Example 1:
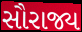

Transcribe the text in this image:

સૌરાજ્ય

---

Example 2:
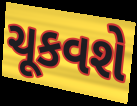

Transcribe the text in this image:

ચૂકવશે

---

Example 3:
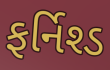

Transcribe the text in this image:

ફર્નિશ્ડ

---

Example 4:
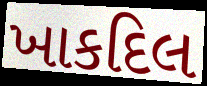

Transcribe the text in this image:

ખાકદિલ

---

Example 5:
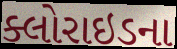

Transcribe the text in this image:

ક્લોરાઇડના